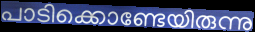
പാടിക്കൊണ്ടേയിരുന്നു